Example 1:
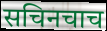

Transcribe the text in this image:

सचिनचाच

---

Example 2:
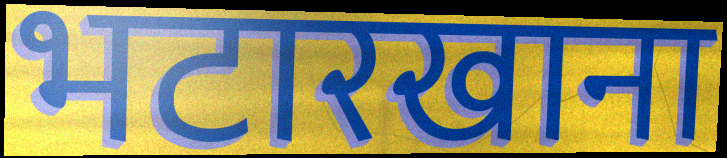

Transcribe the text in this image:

भटारखाना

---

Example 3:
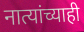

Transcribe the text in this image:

नात्यांच्याही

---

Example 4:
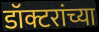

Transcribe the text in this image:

डॉक्टरांच्या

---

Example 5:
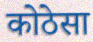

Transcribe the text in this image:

कोठेसा